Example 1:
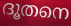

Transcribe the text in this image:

ദൂതനെ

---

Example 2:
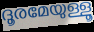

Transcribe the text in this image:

ദൂരമേയുള്ളൂ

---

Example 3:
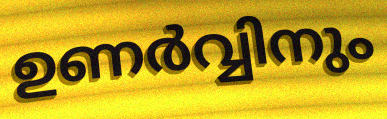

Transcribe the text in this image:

ഉണർവ്വിനും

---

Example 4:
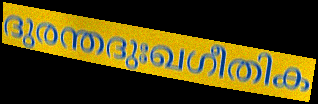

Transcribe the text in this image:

ദുരന്തദുഃഖഗീതിക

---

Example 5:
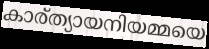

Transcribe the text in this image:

കാര്ത്യായനിയമ്മയെ